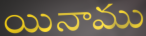
యినాము